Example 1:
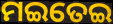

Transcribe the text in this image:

ମଇତେଇ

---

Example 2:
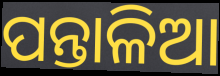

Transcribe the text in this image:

ପନ୍ତାଳିଆ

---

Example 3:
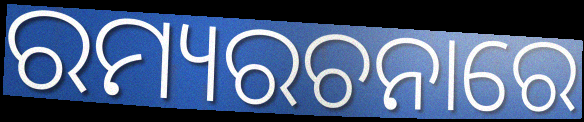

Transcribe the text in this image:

ରମ୍ୟରଚନାରେ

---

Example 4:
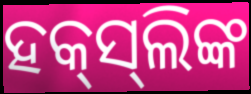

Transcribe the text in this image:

ହକ୍‌ସ୍‌ଲିଙ୍କ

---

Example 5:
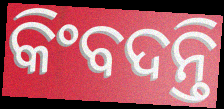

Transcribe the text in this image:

କିଂବଦନ୍ତି